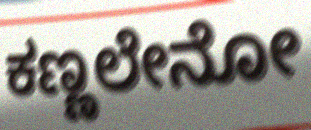
ಕಣ್ಣಲೇನೋ